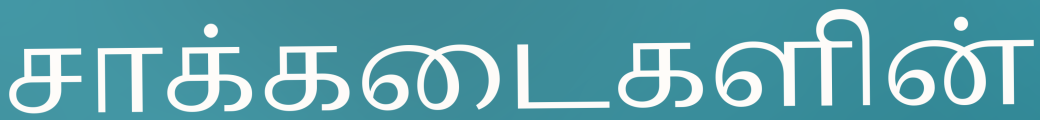
சாக்கடைகளின்